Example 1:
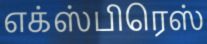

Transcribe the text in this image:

எக்ஸ்பிரெஸ்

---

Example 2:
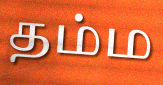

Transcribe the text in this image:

தம்ம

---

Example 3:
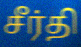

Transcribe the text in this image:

சீர்தி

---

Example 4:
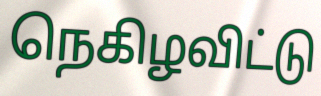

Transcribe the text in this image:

நெகிழவிட்டு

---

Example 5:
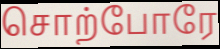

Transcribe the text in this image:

சொற்போரே